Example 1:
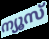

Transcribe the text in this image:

ന്യൂസ്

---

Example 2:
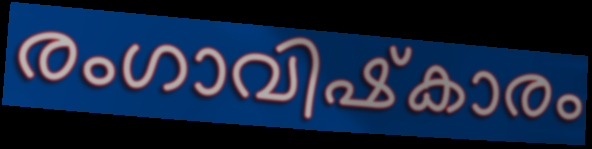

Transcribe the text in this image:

രംഗാവിഷ്‌കാരം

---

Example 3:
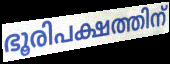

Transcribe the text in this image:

ഭൂരിപക്ഷത്തിന്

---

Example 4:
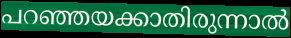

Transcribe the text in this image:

പറഞ്ഞയക്കാതിരുന്നാൽ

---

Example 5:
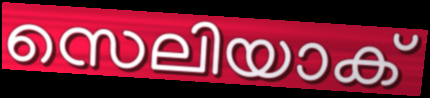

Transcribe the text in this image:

സെലിയാക്